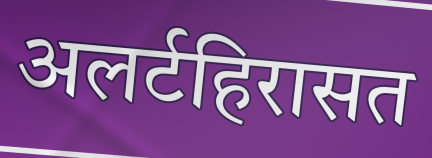
अलर्टहिरासत